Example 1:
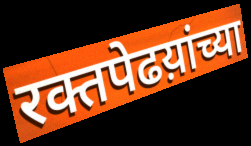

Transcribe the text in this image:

रक्तपेढय़ांच्या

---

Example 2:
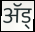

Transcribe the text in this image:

ॲड्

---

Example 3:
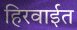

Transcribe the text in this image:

हिरवाईत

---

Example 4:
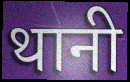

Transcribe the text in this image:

थानी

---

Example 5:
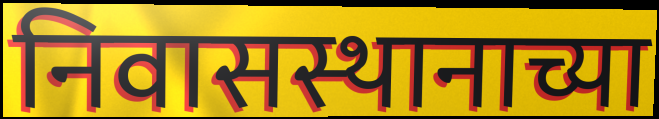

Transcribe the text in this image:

निवासस्थानाच्या